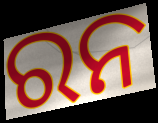
ରନ